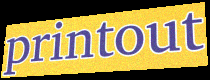
printout